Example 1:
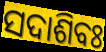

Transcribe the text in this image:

ସଦାଶିବଃ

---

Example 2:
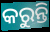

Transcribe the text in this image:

କରୁନ୍ତି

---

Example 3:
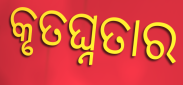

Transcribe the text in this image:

କୃତଘ୍ନତାର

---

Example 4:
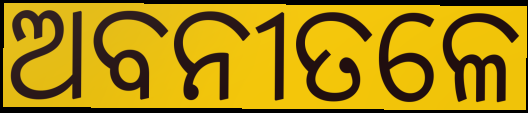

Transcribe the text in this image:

ଅବନୀତଳେ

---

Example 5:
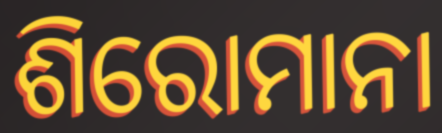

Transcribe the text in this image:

ଶିରୋମାନା